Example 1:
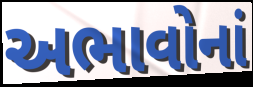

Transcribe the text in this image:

અભાવોનાં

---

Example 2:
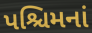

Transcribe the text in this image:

પશ્ચિમનાં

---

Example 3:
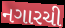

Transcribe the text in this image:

નગારચી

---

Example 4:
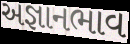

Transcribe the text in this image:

અજ્ઞાનભાવ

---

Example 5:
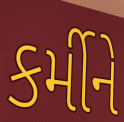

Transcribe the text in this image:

કર્મીને